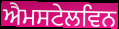
ਐਮਸਟੇਲਵਿਨ